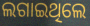
ଲଗାଇଥିଲେ